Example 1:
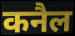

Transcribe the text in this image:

कनैल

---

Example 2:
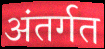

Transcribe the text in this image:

अंतर्गत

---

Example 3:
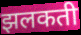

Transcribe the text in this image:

झलकती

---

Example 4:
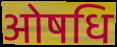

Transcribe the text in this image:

ओषधि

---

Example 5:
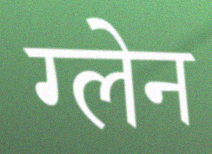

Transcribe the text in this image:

ग्लेन